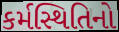
કર્મસ્થિતિનો